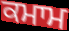
ਕਮਾਮ